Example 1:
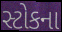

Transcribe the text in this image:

સ્ટોકના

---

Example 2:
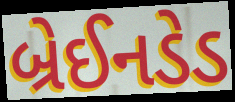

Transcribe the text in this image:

બ્રેઈનડેડ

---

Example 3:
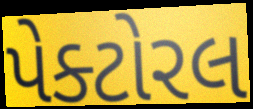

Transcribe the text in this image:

પેક્ટોરલ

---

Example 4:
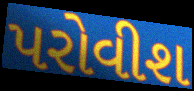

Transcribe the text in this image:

પરોવીશ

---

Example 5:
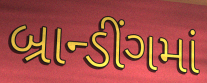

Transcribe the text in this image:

બ્રાન્ડીંગમાં